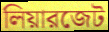
লিয়ারজেট